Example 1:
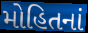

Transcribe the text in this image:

મોહિતનાં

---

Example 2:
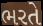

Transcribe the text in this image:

ભરતે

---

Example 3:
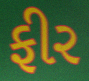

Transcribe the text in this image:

ફીર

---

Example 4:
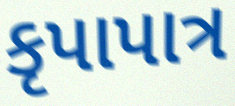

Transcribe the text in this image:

કૃપાપાત્ર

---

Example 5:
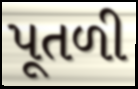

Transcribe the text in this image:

પૂતળી